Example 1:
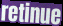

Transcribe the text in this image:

retinue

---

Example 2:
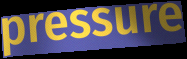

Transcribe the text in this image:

pressure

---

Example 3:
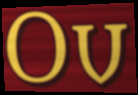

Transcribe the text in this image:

Ou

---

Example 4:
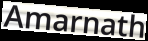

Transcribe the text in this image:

Amarnath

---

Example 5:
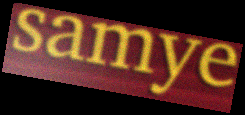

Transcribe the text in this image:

samye